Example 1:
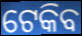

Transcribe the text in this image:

ଟେକିବ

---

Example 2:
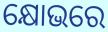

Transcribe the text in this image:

କ୍ଷୋଭରେ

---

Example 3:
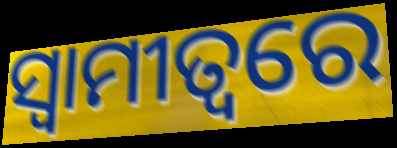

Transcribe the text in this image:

ସ୍ୱାମୀତ୍ୱରେ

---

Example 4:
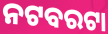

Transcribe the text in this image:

ନଟବରଟା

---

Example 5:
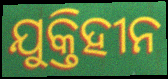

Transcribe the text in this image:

ଯୁକ୍ତିହୀନ